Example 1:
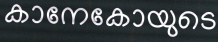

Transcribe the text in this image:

കാനേകോയുടെ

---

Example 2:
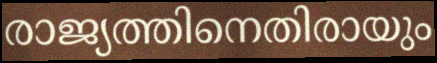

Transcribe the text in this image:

രാജ്യത്തിനെതിരായും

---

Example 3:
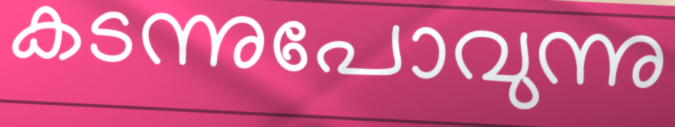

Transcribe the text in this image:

കടന്നുപോവുന്നു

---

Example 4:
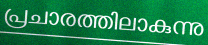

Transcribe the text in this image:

പ്രചാരത്തിലാകുന്നു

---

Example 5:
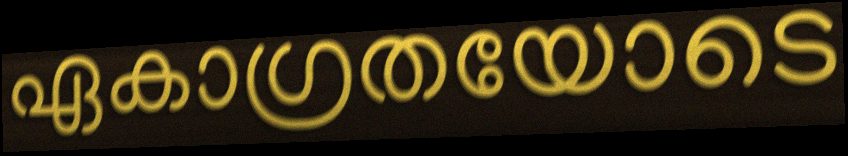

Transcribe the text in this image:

ഏകാഗ്രതയോടെ